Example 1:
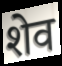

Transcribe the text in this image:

शेव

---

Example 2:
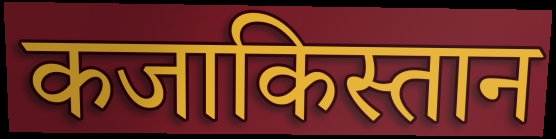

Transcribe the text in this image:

कजाकिस्तान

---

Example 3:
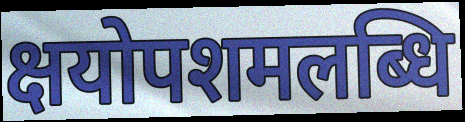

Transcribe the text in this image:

क्षयोपशमलब्धि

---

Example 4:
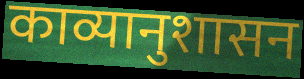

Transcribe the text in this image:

काव्यानुशासन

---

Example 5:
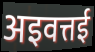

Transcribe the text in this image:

अइवत्तई